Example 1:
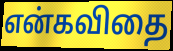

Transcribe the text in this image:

என்கவிதை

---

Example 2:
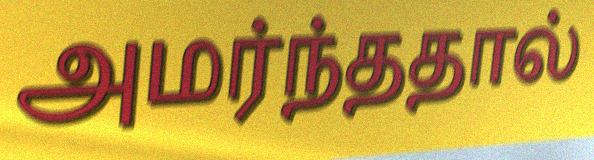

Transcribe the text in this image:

அமர்ந்ததால்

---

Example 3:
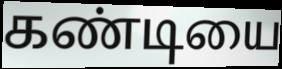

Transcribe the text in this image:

கண்டியை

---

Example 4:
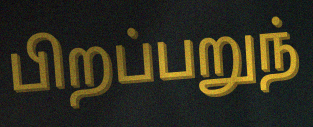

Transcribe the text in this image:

பிறப்பறுந்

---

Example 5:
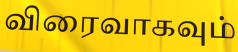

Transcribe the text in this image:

விரைவாகவும்